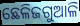
ଛେଳିଜଗୁଆଳି